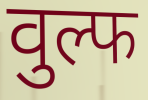
वुल्फ